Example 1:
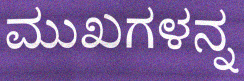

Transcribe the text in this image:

ಮುಖಗಳನ್ನ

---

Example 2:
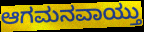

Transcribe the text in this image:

ಆಗಮನವಾಯ್ತು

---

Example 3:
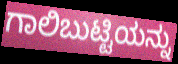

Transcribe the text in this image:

ಗಾಲಿಬುಟ್ಟಿಯನ್ನು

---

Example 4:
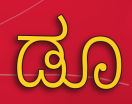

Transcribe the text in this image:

ಡೂ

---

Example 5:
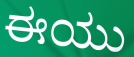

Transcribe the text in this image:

ಈಯು